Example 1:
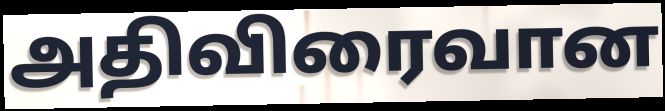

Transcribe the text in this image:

அதிவிரைவான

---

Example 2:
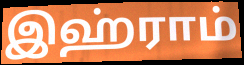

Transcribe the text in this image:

இஹ்ராம்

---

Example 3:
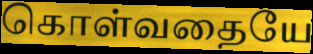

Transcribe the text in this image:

கொள்வதையே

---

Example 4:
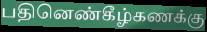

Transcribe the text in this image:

பதினெண்கீழ்கணக்கு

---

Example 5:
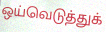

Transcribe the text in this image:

ஒய்வெடுத்துக்